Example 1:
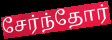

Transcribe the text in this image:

சேர்ந்தோர்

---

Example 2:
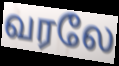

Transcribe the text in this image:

வரலே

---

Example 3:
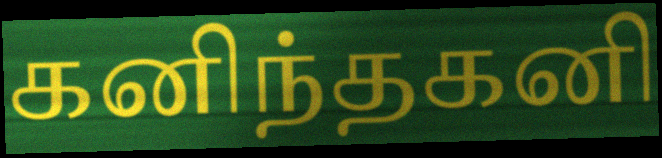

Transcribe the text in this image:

கனிந்தகனி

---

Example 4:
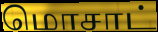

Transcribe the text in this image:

மொசாட்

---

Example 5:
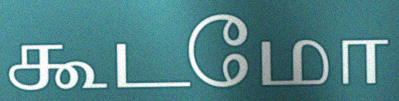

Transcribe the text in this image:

கூடமோ